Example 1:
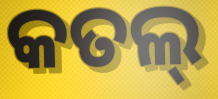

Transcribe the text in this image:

କତଲ୍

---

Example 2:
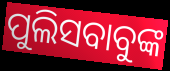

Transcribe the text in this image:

ପୁଲିସବାବୁଙ୍କ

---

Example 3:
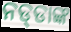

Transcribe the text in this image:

ନଡ୍‌ଡାଙ୍କ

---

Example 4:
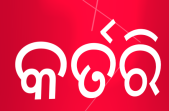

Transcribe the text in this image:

କର୍ତରି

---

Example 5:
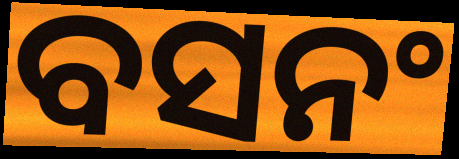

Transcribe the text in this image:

ବସନଂ